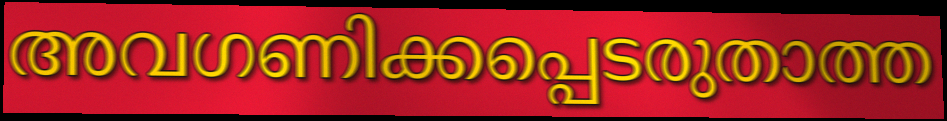
അവഗണിക്കപ്പെടരുതാത്ത